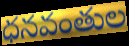
ధనవంతుల